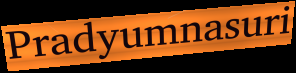
Pradyumnasuri